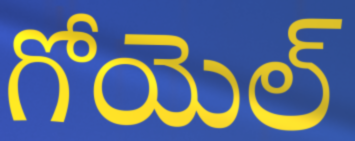
గోయెల్